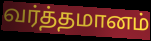
வர்த்தமானம்